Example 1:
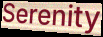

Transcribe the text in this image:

Serenity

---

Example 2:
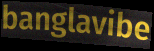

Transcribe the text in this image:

banglavibe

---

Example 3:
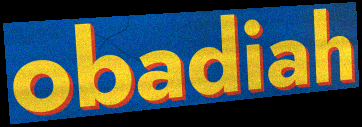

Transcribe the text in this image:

obadiah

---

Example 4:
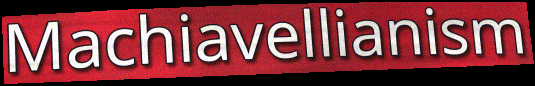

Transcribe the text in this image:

Machiavellianism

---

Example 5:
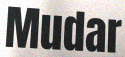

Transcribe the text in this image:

Mudar